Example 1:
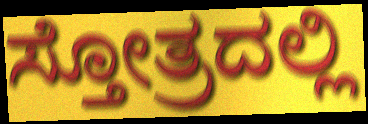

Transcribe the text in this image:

ಸ್ತೋತ್ರದಲ್ಲಿ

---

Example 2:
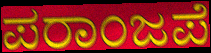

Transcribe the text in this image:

ಪರಾಂಜಪೆ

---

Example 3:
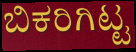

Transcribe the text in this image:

ಬಿಕರಿಗಿಟ್ಟ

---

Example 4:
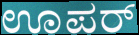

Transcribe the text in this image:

ಊಪರ್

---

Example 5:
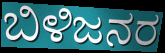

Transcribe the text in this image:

ಬಿಳಿಜನರ